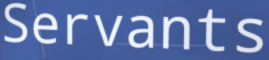
Servants